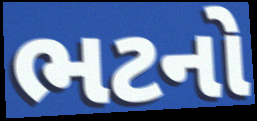
ભટનો